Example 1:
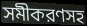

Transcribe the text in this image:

সমীকরণসহ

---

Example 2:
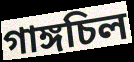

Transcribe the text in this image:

গাঙ্গচিল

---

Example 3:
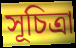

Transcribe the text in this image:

সূচিত্রা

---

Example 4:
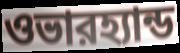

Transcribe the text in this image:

ওভারহ্যান্ড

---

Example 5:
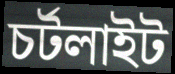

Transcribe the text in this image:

চর্টলাইট